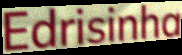
Edrisinha